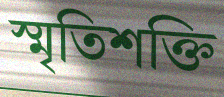
স্মৃতিশক্তি